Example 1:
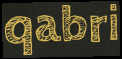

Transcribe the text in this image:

qabri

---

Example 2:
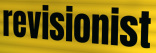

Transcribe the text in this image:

revisionist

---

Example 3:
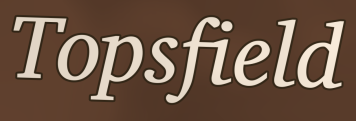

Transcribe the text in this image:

Topsfield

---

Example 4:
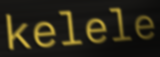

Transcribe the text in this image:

kelele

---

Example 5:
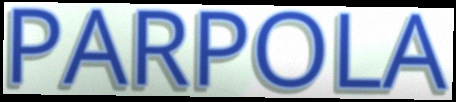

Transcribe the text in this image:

PARPOLA